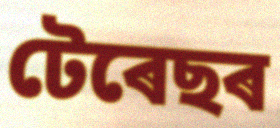
টেৰেছৰ